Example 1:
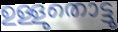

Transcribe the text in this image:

ഉള്ളുതൊട്ടു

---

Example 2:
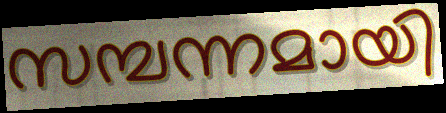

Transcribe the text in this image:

സമ്പന്നമായി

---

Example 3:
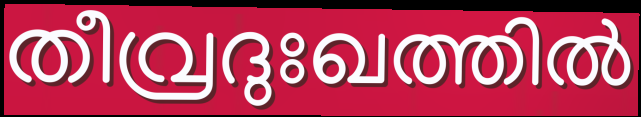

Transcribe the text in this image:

തീവ്രദുഃഖത്തിൽ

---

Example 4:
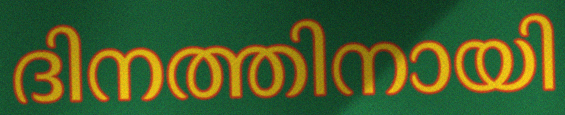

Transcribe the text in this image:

ദിനത്തിനായി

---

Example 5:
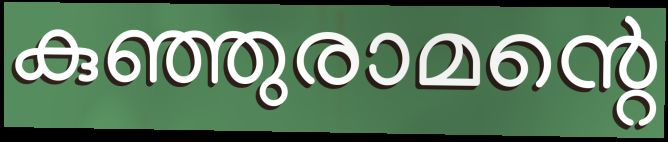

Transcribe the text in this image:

കുഞ്ഞുരാമന്റെ